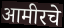
आमीरचे